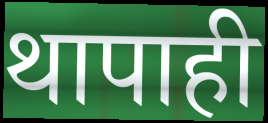
थापाही